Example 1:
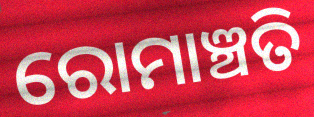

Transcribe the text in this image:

ରୋମାଞ୍ଚତି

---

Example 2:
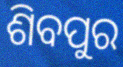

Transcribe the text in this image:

ଶିବପୁର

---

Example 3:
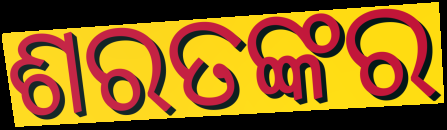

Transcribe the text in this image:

ଶରତଙ୍କର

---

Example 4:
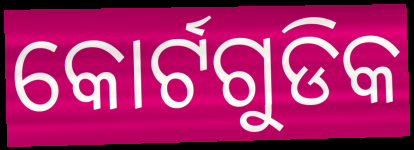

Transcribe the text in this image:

କୋର୍ଟଗୁଡିକ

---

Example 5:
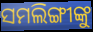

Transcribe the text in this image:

ସମଲିଙ୍ଗୀଙ୍କୁ